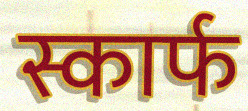
स्कार्फ